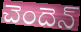
చెందెన్